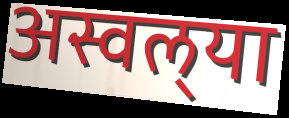
अस्वल्या